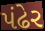
પંઢેર